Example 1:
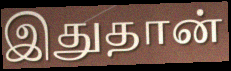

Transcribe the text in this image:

இதுதான்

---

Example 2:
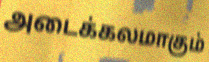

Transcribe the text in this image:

அடைக்கலமாகும்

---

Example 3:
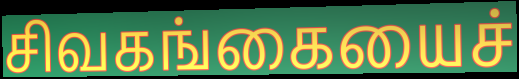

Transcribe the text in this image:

சிவகங்கையைச்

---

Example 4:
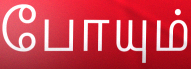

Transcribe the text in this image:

போயும்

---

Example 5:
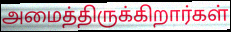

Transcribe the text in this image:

அமைத்திருக்கிறார்கள்